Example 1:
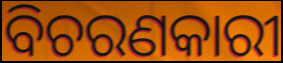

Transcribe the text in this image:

ବିଚରଣକାରୀ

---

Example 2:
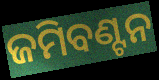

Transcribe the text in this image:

ଜମିବଣ୍ଟନ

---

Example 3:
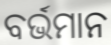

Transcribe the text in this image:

ବର୍ଭମାନ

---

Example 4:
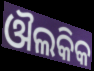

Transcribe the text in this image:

ଔଲକିକ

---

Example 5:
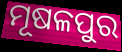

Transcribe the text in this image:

ମୂଷଳପୁର